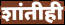
शांतीही